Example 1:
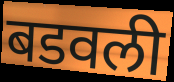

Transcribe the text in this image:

बडवली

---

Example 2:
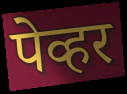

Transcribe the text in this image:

पेव्हर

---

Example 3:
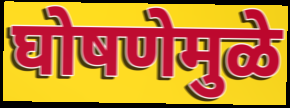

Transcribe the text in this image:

घोषणेमुळे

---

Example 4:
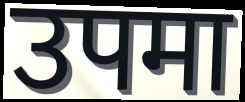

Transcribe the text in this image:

उपमा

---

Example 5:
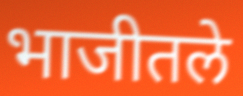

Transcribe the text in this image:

भाजीतले